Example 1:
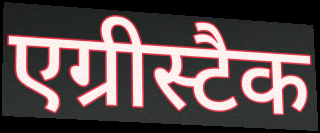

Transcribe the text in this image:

एग्रीस्टैक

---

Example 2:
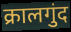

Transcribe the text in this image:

क्रालगुंद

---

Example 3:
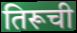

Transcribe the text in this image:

तिरूची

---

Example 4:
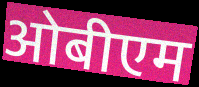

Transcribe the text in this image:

ओबीएम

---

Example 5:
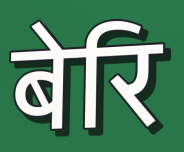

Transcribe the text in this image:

बेरि